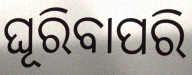
ଘୂରିବାପରି